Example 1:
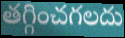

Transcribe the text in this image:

తగ్గించగలదు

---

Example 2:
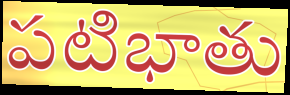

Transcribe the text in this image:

పటిభాతు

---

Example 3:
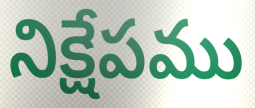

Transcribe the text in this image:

నిక్షేపము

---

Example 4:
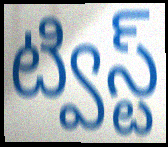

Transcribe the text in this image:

ట్విస్ట్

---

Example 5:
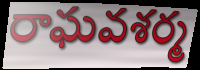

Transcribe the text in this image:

రాఘవశర్మ